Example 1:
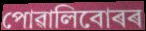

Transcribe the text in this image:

পোৱালিবোৰৰ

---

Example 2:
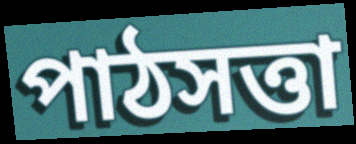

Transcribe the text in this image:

পাঠসত্তা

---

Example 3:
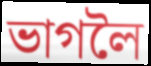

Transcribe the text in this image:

ভাগলৈ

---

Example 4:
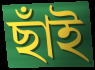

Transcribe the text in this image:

ছাঁই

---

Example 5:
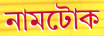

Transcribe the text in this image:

নামটোক